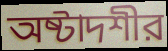
অষ্টাদশীর